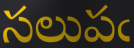
సలుపఁ